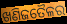
ଖଣିଜତୈଳର